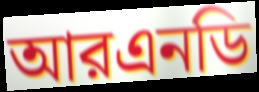
আরএনডি